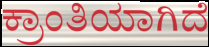
ಕ್ರಾಂತಿಯಾಗಿದೆ